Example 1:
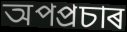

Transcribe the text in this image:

অপপ্ৰচাৰ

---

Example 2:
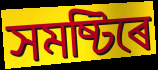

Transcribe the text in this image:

সমষ্টিৰে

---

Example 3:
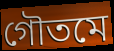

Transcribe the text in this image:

গৌতমে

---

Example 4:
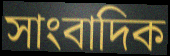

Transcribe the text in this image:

সাংবাদিক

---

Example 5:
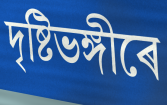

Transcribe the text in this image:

দৃষ্টিভঙ্গীৰে